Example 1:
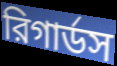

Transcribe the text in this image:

রিগার্ডস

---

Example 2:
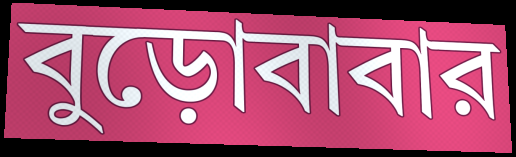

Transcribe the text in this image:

বুড়োবাবার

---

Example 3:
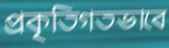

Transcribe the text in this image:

প্রকৃতিগতভাবে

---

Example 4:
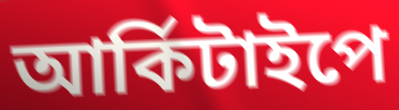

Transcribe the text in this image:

আর্কিটাইপে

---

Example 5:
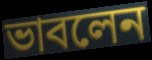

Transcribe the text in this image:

ভাবলেন